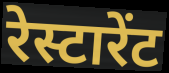
रेस्टारेंट